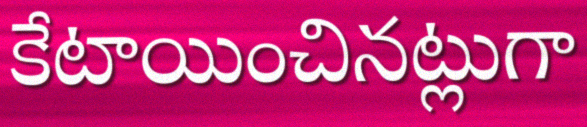
కేటాయించినట్లుగా